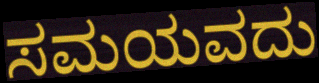
ಸಮಯವದು